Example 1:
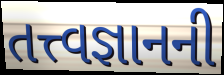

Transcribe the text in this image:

તત્ત્વજ્ઞાનની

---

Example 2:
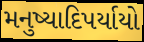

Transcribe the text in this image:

મનુષ્યાદિપર્યાયો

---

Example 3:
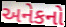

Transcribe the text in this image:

અનેકનો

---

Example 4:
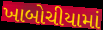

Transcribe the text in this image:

ખાબોચીયામાં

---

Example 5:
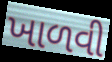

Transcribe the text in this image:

ખાળવી